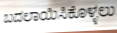
ಬದಲಾಯಿಸಿಕೊಳ್ಳಲು